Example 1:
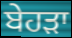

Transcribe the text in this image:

ਬੇਹੜਾ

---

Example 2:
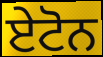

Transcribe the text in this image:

ਏਟੋਨ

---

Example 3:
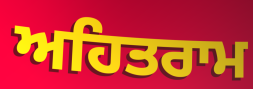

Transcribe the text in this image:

ਅਹਿਤਰਾਮ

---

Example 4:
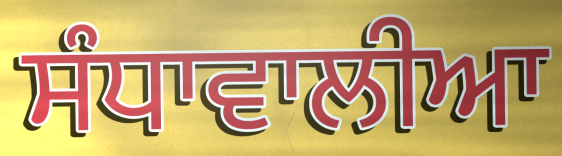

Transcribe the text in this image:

ਸੰਧਾਵਾਲੀਆ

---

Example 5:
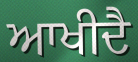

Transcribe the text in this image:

ਆਖੀਦੈ